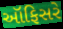
ઑફિસરે